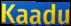
Kaadu